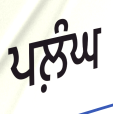
ਪਲ਼ੰਘ